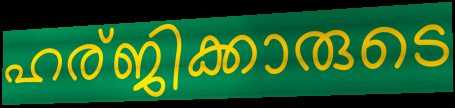
ഹര്ജിക്കാരുടെ